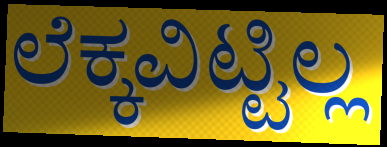
ಲೆಕ್ಕವಿಟ್ಟಿಲ್ಲ